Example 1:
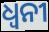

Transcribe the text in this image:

ଧ୍ୱନୀ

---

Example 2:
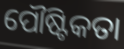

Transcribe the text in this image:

ପୌଷ୍ଟିକତା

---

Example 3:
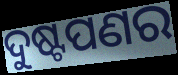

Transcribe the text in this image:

ଦୁଷ୍ଟପଣର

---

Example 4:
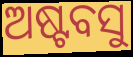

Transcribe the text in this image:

ଅଷ୍ଟବସୁ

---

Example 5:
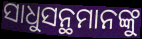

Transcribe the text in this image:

ସାଧୁସନ୍ଥମାନଙ୍କୁ